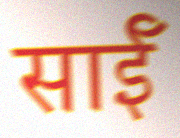
साईॅ